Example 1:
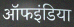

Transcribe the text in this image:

ऑफइंडिया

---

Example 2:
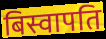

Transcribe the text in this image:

बिस्वापति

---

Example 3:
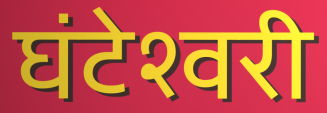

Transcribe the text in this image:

घंटेश्वरी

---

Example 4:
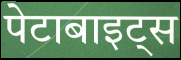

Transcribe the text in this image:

पेटाबाइट्स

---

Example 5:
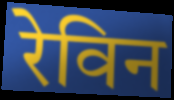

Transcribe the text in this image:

रेविन